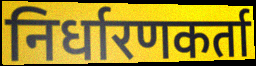
निर्धारणकर्ता